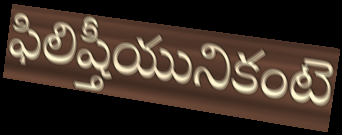
ఫిలిష్తీయునికంటె